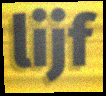
lijf